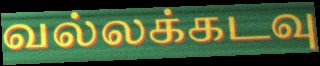
வல்லக்கடவு